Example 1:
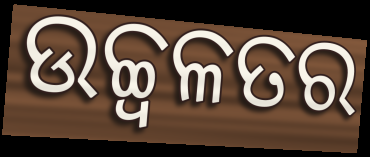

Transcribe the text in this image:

ଉଚ୍ଚ୍ୱଳତର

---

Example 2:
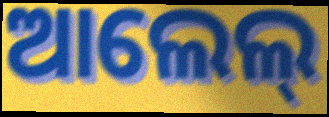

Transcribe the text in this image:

ଆଲେଲ୍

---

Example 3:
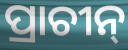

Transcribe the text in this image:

ପ୍ରାଚୀନ୍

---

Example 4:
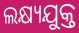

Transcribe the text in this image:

ଲକ୍ଷ୍ୟଯୁକ୍ତ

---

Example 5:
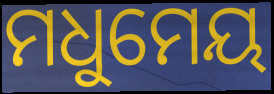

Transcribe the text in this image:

ମଧୁମେୟ